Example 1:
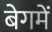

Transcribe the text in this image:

बेगमें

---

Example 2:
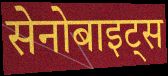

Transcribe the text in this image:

सेनोबाइट्स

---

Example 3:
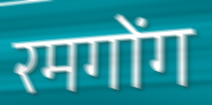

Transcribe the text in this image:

रमगोंग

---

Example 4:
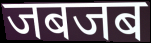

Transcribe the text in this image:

जबजब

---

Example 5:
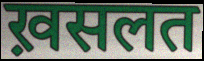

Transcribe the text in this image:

ख़सलत